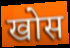
खोस